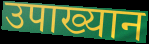
उपाख्यान